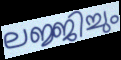
ലജ്ജിച്ചും